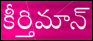
కీర్తిమాన్